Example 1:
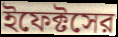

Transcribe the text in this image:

ইফেক্টসের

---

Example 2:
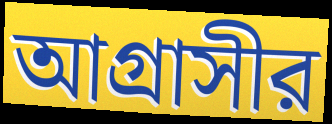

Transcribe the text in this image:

আগ্রাসীর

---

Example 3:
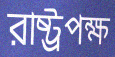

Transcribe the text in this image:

রাষ্ট্রপক্ষ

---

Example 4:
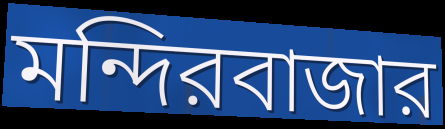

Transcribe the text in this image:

মন্দিরবাজার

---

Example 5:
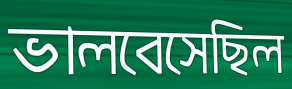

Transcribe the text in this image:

ভালবেসেছিল